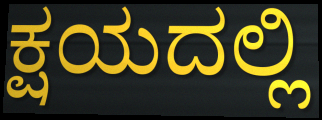
ಕ್ಷಯದಲ್ಲಿ